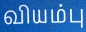
வியம்பு